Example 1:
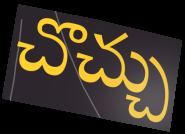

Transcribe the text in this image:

చొచ్చు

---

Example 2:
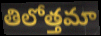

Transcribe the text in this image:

తిలోత్తమా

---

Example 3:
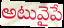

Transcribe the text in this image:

అటువైపే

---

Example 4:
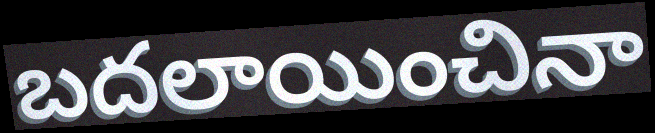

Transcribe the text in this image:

బదలాయించినా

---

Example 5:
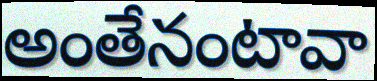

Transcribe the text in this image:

అంతేనంటావా